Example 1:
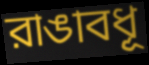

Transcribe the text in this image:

রাঙাবধূ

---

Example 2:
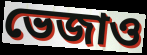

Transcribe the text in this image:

ভেজাও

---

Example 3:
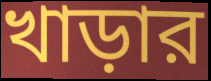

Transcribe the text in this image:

খাড়ার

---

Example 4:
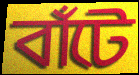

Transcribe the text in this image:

বাঁটে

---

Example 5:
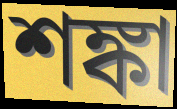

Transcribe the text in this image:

শঙ্কা